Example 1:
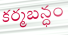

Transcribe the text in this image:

కర్మబన్ధం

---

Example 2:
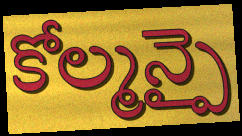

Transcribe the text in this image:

కోల్మన్పై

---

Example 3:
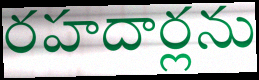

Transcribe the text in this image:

రహదార్లను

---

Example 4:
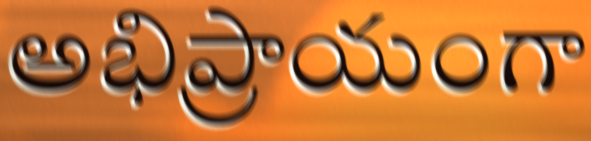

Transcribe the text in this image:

అభిప్రాయంగా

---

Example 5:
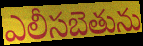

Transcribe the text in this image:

ఎలీసబెతును